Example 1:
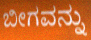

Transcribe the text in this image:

ಬೀಗವನ್ನು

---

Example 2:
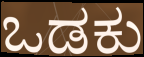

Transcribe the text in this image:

ಒಡಕು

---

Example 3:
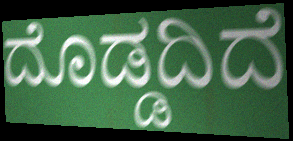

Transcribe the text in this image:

ದೊಡ್ಡದಿದೆ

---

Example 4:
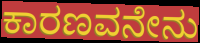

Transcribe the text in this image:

ಕಾರಣವನೇನು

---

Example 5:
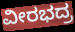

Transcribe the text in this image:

ವೀರಭದ್ರ